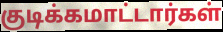
குடிக்கமாட்டார்கள்